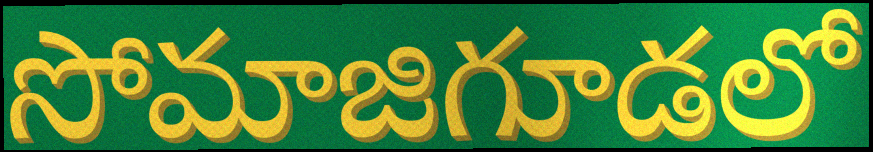
సోమాజిగూడలో